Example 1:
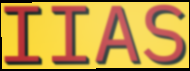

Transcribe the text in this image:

IIAS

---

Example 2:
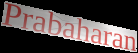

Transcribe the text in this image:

Prabaharan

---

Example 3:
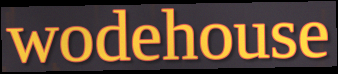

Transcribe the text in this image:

wodehouse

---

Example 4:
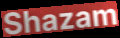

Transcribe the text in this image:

Shazam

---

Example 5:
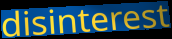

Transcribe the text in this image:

disinterest